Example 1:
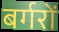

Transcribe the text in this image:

बर्गरों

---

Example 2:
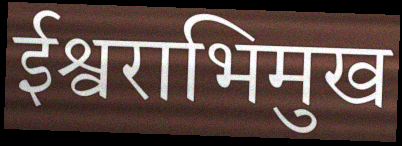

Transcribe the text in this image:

ईश्वराभिमुख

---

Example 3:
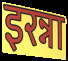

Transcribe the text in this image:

इरन्ना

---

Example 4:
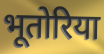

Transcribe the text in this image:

भूतोरिया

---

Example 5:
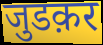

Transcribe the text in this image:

जुडक़र